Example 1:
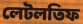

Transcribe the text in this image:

লেটলতিফ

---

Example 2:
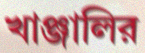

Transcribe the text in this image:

খাঞ্জালির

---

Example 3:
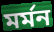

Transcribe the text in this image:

মর্মন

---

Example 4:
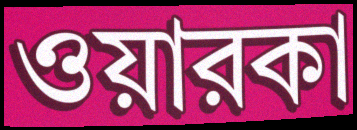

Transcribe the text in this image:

ওয়ারকা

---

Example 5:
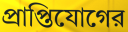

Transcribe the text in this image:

প্রাপ্তিযোগের